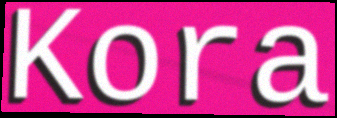
Kora